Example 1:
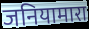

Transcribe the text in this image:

जनियामारा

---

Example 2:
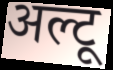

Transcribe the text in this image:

अल्टू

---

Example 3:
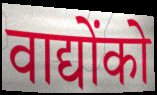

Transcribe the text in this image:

वाद्योंको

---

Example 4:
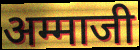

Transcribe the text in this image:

अम्माजी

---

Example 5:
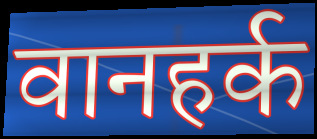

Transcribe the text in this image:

वानहर्क